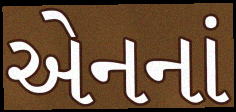
એનનાં